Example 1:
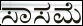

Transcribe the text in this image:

ಸಾಸಮೆ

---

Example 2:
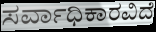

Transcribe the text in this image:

ಸರ್ವಾಧಿಕಾರವಿದೆ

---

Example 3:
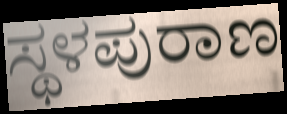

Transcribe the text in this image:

ಸ್ಥಳಪುರಾಣ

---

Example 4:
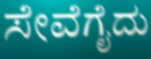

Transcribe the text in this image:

ಸೇವೆಗೈದು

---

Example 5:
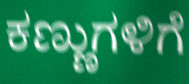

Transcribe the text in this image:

ಕಣ್ಣುಗಳಿಗೆ